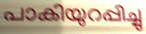
പാകിയുറപ്പിച്ചു